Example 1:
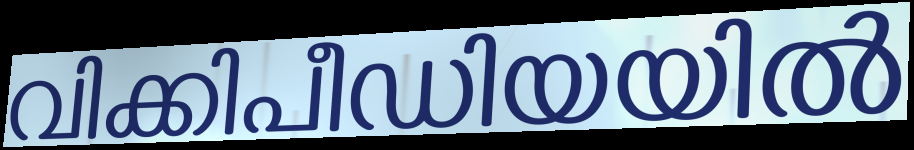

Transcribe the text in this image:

വിക്കിപീഡിയയിൽ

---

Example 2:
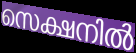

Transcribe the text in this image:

സെക്ഷനിൽ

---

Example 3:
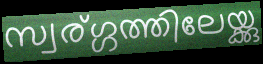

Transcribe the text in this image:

സ്വര്ഗ്ഗത്തിലേയ്ക്കു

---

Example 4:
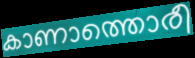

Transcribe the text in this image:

കാണാത്തൊരീ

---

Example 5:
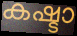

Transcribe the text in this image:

കഷ്ടാ